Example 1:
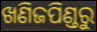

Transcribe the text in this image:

ଖଣିଜପିଣ୍ଡରୁ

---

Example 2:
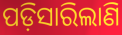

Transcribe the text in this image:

ପଡ଼ିସାରିଲାଣି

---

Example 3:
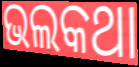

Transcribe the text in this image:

ଭଲକଥା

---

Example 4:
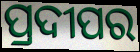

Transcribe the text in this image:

ପ୍ରଦୀପର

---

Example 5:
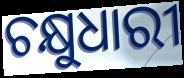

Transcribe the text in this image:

ଚକ୍ଷୁଧାରୀ